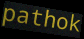
pathok